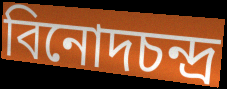
বিনোদচন্দ্র